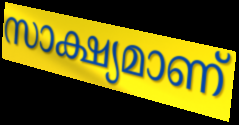
സാക്ഷ്യമാണ്